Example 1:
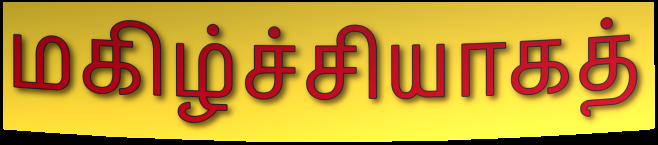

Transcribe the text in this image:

மகிழ்ச்சியாகத்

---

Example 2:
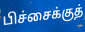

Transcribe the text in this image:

பிச்சைக்குத்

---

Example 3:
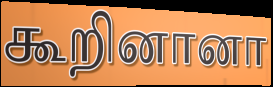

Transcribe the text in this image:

கூறினானா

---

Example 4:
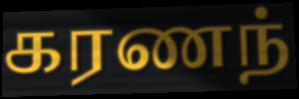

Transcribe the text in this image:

கரணந்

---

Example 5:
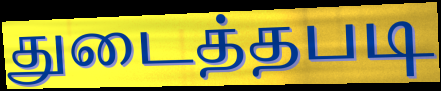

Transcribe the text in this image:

துடைத்தபடி